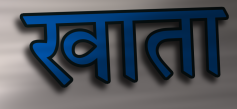
खाता